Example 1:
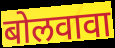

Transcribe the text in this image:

बोलवावा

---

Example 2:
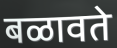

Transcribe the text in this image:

बळावते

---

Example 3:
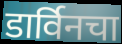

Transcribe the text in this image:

डार्विनचा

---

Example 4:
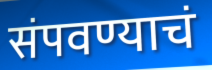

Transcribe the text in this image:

संपवण्याचं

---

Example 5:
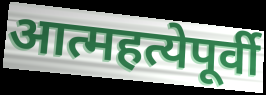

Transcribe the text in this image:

आत्महत्येपूर्वी